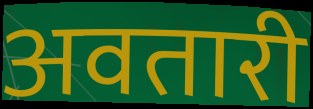
अवतारी